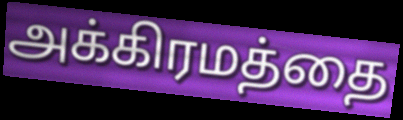
அக்கிரமத்தை